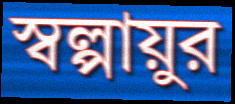
স্বল্পায়ুর